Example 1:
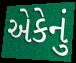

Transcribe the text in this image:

એકેનું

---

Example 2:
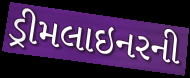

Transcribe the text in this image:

ડ્રીમલાઇનરની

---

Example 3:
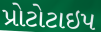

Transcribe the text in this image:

પ્રોટોટાઇપ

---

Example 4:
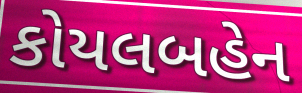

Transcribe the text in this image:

કોયલબહેન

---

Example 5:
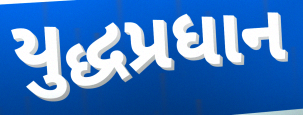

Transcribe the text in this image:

યુદ્ધપ્રધાન